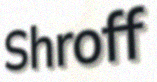
Shroff